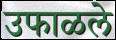
उफाळले